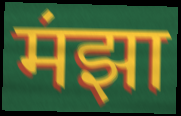
मंझा